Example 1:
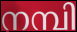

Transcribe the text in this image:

നമ്പി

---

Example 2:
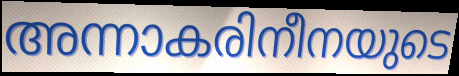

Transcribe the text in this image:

അന്നാകരിനീനയുടെ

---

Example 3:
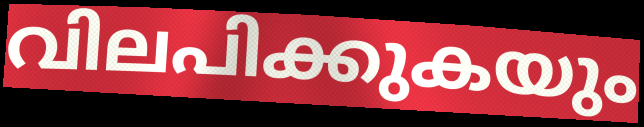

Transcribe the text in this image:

വിലപിക്കുകയും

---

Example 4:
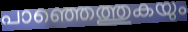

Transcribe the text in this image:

പാഞ്ഞെത്തുകയും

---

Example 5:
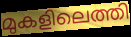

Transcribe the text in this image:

മുകളിലെത്തി